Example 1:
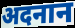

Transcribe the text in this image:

अदनान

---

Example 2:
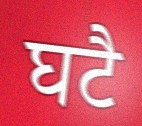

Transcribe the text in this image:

घटै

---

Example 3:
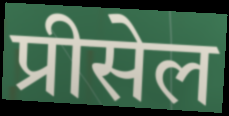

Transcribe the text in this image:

प्रीसेल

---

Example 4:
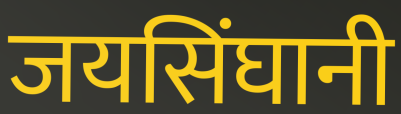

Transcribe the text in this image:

जयसिंघानी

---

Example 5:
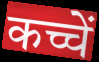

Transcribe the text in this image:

कच्चें